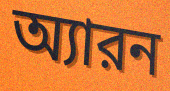
অ্যারন